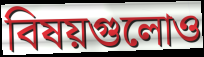
বিষয়গুলোও